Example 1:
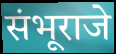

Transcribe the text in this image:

संभूराजे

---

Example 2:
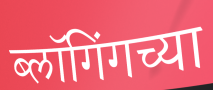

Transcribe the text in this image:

ब्लॉगिंगच्या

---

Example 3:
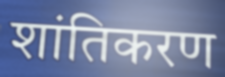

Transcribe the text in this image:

शांतिकरण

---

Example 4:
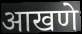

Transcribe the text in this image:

आखणे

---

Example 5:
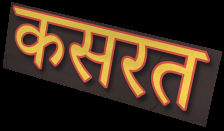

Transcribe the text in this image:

कसरत